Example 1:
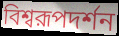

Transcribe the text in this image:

বিশ্বরূপদর্শন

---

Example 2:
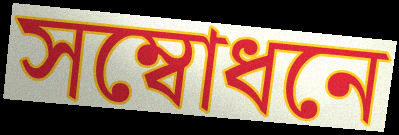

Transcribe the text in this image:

সম্বোধনে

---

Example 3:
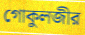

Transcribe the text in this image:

গোকুলজীর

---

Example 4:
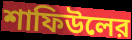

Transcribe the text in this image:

শাফিউলের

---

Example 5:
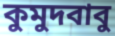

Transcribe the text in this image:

কুমুদবাবু